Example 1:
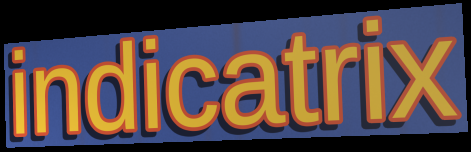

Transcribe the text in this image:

indicatrix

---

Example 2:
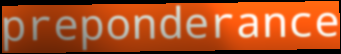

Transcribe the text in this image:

preponderance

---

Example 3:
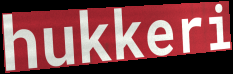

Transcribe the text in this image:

hukkeri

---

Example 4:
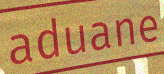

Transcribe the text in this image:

aduane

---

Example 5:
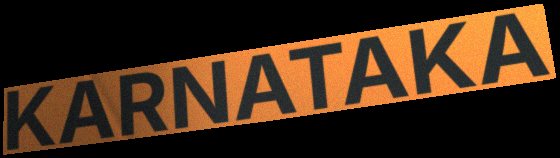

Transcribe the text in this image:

KARNATAKA